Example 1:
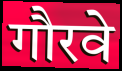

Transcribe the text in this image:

गौरवे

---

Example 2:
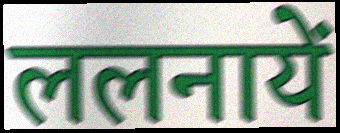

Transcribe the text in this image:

ललनायें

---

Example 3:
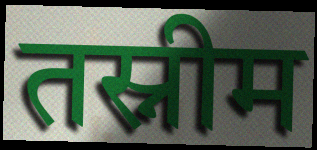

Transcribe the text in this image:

तस्नीम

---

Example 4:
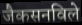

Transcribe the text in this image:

जैकसनविले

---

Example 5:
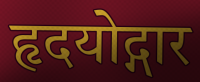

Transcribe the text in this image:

हृदयोद्गार